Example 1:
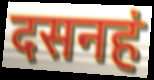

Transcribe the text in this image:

दसनहं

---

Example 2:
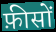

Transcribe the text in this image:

फ़ीसों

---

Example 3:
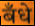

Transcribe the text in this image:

बँधे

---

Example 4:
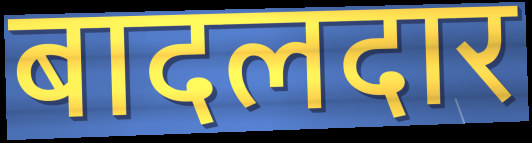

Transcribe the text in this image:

बादलदार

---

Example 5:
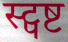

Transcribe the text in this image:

स्ट्पष्ट